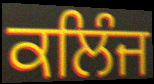
ਕਲਿੰਜ